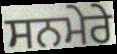
ਸਨਮੇਰੇ